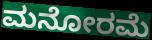
ಮನೋರಮೆ